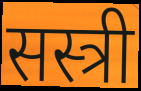
सस्त्री